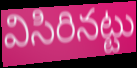
విసిరినట్టు